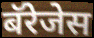
बॅरेजेस